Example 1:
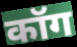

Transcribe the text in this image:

कॉग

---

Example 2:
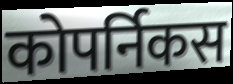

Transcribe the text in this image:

कोपर्निकस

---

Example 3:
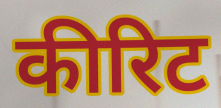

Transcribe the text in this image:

कीरिट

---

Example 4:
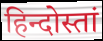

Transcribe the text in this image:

हिन्दोस्तां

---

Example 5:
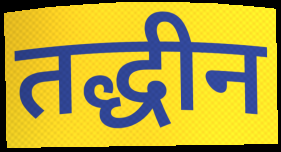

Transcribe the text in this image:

तद्धीन